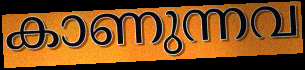
കാണുന്നവ